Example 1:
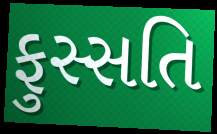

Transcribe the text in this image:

ફુસ્સતિ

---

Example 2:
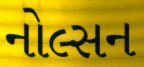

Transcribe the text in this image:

નોલ્સન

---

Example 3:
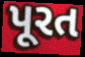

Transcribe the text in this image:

પૂરત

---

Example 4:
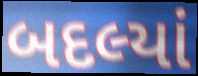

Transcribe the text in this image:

બદલ્યાં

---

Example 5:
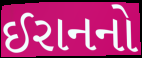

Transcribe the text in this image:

ઈરાનનો